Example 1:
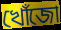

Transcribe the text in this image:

খোঁজো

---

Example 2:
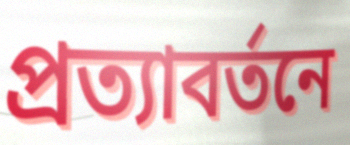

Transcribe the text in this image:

প্রত্যাবর্তনে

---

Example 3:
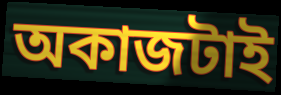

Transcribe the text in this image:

অকাজটাই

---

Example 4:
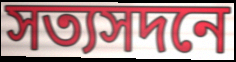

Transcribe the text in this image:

সত্যসদনে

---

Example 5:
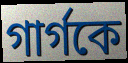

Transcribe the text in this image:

গার্গকে